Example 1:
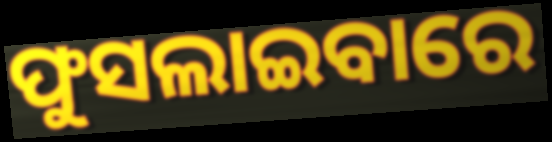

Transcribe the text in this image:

ଫୁସଲାଇବାରେ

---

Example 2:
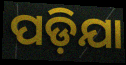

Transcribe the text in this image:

ପଡ଼ିଯା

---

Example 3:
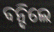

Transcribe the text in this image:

ବନ୍ଦିଲେ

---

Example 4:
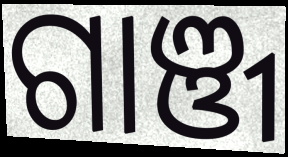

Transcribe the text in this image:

ଗାଞ୍ଜ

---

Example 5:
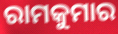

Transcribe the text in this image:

ରାମକୁମାର